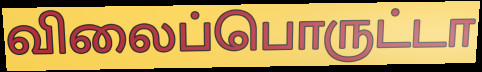
விலைப்பொருட்டா